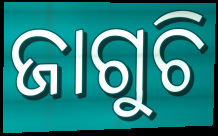
ଜାଗୁଚି